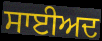
ਸਾਈਅਦ